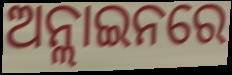
ଅନ୍ଲାଇନରେ